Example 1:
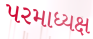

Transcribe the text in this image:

પરમાધ્યક્ષ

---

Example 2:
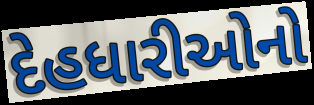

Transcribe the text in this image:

દેહધારીઓનો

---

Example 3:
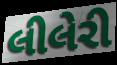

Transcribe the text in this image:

લીલેરી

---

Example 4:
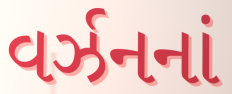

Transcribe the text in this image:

વર્ઝનનાં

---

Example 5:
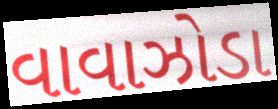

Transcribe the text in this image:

વાવાઝોડા